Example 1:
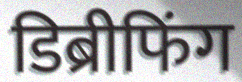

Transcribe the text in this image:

डिब्रीफिंग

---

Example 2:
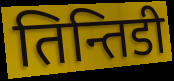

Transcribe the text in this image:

तिन्तिडी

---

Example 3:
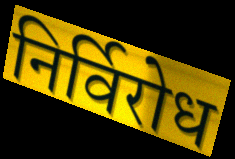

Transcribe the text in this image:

निर्विरोध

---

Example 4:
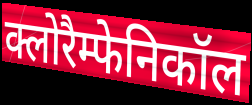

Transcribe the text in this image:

क्लोरैम्फेनिकॉल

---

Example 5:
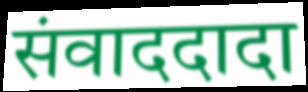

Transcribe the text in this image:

संवाददादा